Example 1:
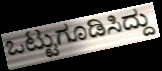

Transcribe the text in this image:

ಒಟ್ಟುಗೂಡಿಸಿದ್ದು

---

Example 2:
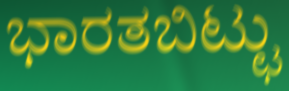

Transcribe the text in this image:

ಭಾರತಬಿಟ್ಟು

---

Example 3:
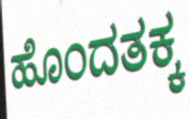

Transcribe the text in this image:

ಹೊಂದತಕ್ಕ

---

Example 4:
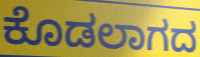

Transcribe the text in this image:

ಕೊಡಲಾಗದ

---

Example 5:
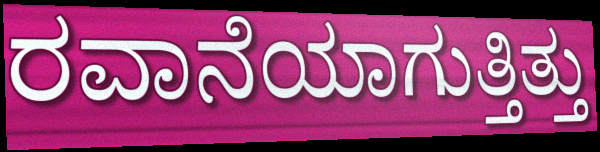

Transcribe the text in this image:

ರವಾನೆಯಾಗುತ್ತಿತ್ತು